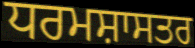
ਧਰਮਸ਼ਾਸਤਰ